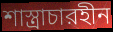
শাস্ত্রাচারহীন